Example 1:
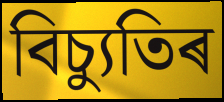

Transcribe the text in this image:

বিচ্যুতিৰ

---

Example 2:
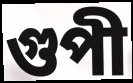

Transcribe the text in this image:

গুপী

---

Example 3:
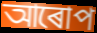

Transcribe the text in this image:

আৰোপ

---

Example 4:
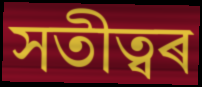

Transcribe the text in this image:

সতীত্বৰ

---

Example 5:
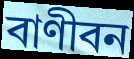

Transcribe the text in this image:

বাণীবন